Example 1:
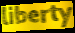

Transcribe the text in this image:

liberty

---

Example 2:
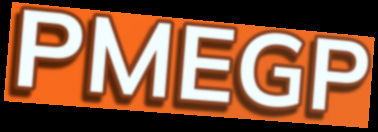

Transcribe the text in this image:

PMEGP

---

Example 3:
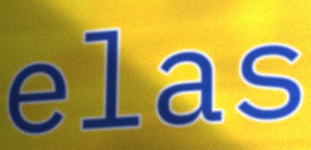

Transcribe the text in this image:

elas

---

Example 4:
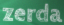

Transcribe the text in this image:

zerda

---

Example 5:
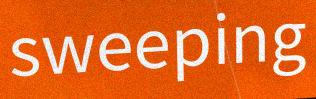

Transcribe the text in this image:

sweeping